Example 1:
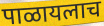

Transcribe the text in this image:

पाळायलाच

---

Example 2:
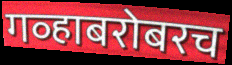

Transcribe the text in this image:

गव्हाबरोबरच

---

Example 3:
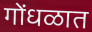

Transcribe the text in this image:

गोंधळात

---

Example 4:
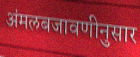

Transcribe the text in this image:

अंमलबजावणीनुसार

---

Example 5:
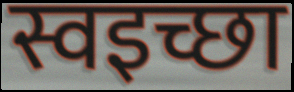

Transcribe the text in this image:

स्वइच्छा